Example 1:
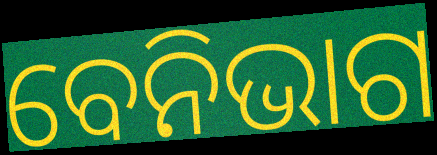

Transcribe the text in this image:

ବେନିଭାଗ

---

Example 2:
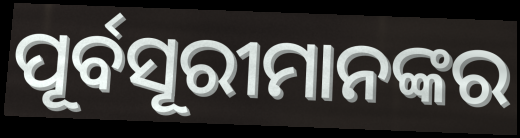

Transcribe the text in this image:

ପୂର୍ବସୂରୀମାନଙ୍କର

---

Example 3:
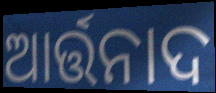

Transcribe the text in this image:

ଆର୍ତ୍ତନାଦ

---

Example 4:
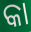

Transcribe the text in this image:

କା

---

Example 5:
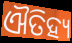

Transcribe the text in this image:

ଐତିହ୍ୟ